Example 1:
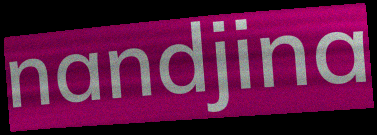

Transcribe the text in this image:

nandjina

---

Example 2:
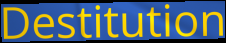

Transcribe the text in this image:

Destitution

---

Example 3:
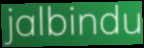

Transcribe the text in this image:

jalbindu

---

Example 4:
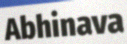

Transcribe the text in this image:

Abhinava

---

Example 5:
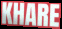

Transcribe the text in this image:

KHARE